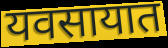
यवसायात